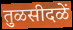
तुळसीदळें